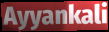
Ayyankali